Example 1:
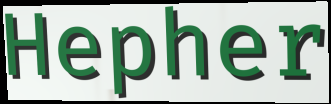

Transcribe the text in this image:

Hepher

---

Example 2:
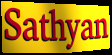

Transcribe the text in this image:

Sathyan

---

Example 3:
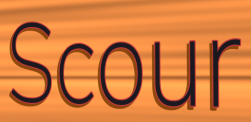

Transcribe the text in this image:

Scour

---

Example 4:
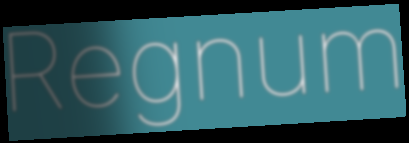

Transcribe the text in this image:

Regnum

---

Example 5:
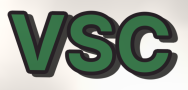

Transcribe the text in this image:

VSC